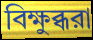
বিক্ষুব্ধরা